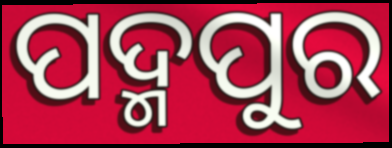
ପଦ୍ମପୁର